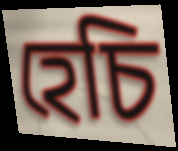
হেচি